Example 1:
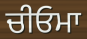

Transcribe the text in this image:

ਚੀਓਮਾ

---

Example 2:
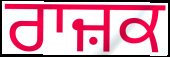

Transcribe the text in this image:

ਰਾਜ਼ਕ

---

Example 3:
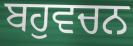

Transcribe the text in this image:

ਬਹੁਵਚਨ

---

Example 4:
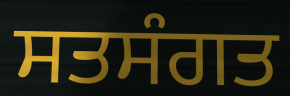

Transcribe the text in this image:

ਸਤਸੰਗਤ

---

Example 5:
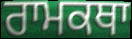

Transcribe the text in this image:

ਰਾਮਕਥਾ